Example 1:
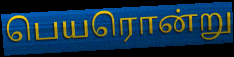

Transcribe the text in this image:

பெயரொன்று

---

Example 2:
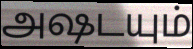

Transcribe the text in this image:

அஷடயும்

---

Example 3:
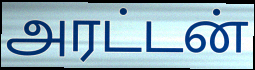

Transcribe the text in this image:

அரட்டன்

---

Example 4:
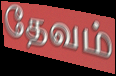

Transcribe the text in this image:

தேவம்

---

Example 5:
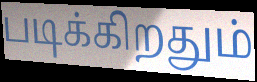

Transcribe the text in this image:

படிக்கிறதும்